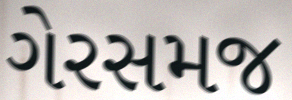
ગેરસમજ